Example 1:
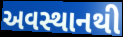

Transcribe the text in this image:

અવસ્થાનથી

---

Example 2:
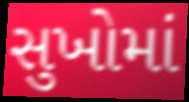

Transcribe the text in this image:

સુખોમાં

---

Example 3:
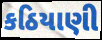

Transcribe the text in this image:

કઠિયાણી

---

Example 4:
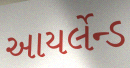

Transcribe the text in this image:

આયર્લેન્ડ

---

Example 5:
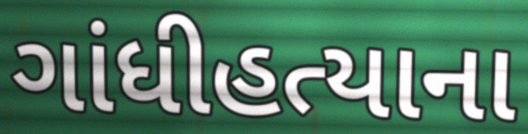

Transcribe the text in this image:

ગાંધીહત્યાના